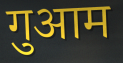
गुआम